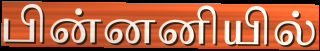
பின்னனியில்